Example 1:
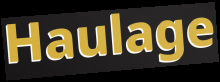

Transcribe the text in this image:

Haulage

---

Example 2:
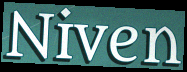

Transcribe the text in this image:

Niven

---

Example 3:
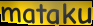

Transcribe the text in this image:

mataku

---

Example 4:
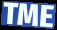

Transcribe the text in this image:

TME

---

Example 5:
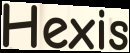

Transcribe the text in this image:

Hexis